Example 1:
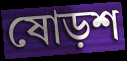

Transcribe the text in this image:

ষোড়শ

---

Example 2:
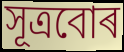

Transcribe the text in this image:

সূত্ৰবোৰ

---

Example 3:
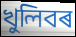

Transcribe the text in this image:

খুলিবৰ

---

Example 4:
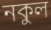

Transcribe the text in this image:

নকুল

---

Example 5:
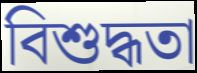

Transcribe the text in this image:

বিশুদ্ধতা